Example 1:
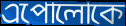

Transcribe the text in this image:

এপোলোকে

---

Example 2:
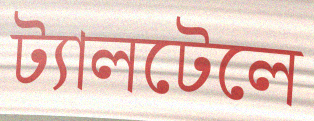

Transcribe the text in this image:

ট্যালটেলে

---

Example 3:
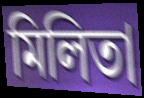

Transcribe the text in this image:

মিলিতা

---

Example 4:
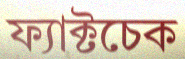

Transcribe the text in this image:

ফ্যাক্টচেক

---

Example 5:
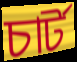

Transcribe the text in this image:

চার্ট